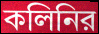
কলিনির